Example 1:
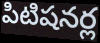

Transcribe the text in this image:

పిటిషనర్ల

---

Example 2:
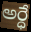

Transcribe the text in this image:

అర్ధే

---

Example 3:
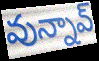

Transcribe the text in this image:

వున్నావ్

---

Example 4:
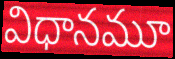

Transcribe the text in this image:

విధానమూ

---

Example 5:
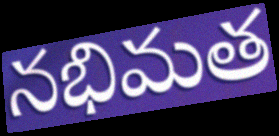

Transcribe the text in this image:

నభిమత